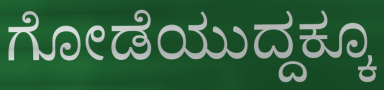
ಗೋಡೆಯುದ್ದಕ್ಕೂ